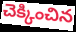
చెక్కించిన